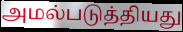
அமல்படுத்தியது